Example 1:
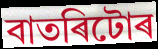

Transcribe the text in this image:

বাতৰিটোৰ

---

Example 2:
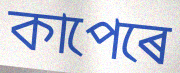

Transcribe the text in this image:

কাপেৰে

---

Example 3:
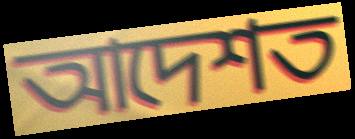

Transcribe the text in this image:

আদেশত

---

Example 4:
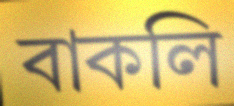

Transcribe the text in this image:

বাকলি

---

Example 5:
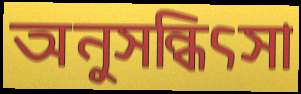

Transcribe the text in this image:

অনুসন্ধিৎসা